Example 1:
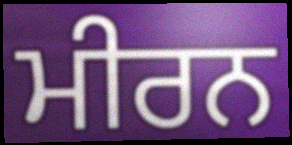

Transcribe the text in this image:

ਮੀਰਨ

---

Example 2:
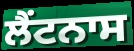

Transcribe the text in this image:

ਲੈਂਟਨਾਸ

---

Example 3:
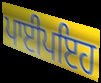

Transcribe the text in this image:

ਪਾਈਪਇਹ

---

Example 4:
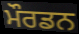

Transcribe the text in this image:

ਮੌਰਡਨ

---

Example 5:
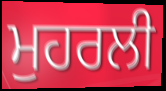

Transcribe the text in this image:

ਮੁਹਰਲੀ